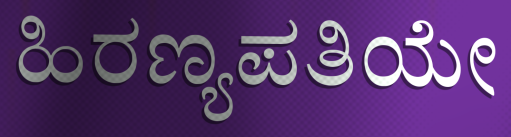
ಹಿರಣ್ಯಪತಿಯೇ